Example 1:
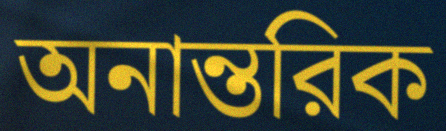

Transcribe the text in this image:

অনান্তরিক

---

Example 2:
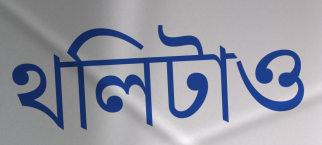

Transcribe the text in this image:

থলিটাও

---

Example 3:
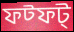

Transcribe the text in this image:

ফট্ফট্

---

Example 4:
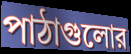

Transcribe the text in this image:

পাঠাগুলোর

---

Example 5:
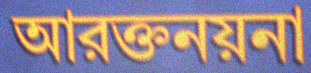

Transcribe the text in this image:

আরক্তনয়না